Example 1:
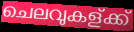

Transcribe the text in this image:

ചെലവുകള്ക്ക്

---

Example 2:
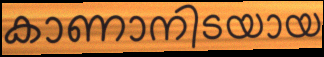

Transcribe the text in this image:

കാണാനിടയായ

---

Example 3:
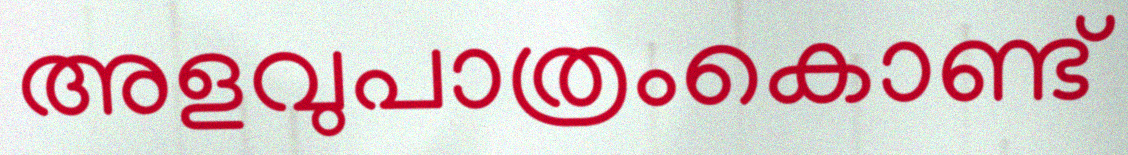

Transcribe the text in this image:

അളവുപാത്രംകൊണ്ട്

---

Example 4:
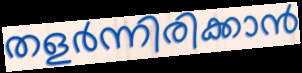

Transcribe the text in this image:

തളർന്നിരിക്കാൻ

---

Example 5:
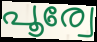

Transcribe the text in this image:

പൂര്വേ